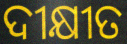
ଦୀକ୍ଷୀତ